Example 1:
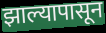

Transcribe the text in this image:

झाल्यापासून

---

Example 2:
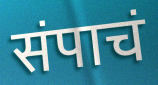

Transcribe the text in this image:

संपाचं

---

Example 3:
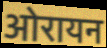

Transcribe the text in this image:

ओरायन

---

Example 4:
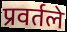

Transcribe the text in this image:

प्रवर्तले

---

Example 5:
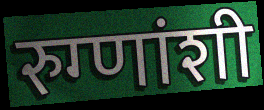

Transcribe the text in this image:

रुग्णांशी